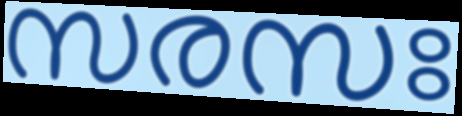
സരസഃ